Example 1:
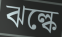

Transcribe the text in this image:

ঝল্কে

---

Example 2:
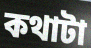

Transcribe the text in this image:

কথাটা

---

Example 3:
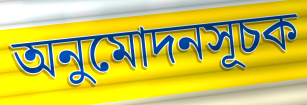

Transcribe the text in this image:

অনুমোদনসূচক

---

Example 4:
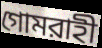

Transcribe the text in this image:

গোমরাহী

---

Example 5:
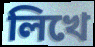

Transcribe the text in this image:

লিখে